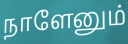
நாளேனும்